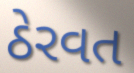
ઠેરવત